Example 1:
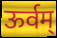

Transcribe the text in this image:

ऊर्वम्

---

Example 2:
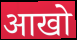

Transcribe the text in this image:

आखो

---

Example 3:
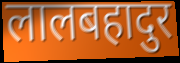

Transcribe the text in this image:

लालबहादुर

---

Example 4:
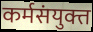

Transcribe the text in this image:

कर्मसंयुक्त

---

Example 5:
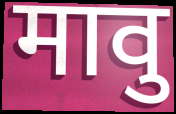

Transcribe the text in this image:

मावु